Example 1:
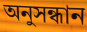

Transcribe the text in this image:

অনুসন্ধান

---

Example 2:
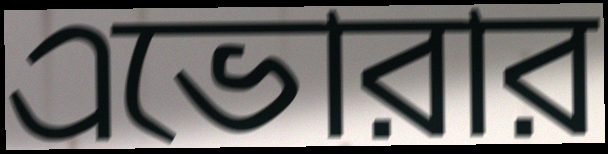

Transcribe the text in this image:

এভোরার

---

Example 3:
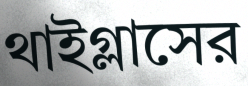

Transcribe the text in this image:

থাইগ্লাসের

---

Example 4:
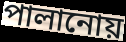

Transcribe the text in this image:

পালানোয়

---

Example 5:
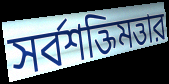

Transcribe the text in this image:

সর্বশক্তিমত্তার